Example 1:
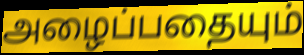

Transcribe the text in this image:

அழைப்பதையும்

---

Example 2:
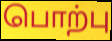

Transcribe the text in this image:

பொற்பு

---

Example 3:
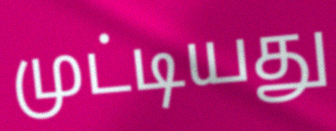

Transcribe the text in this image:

முட்டியது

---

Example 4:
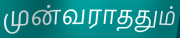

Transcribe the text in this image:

முன்வராததும்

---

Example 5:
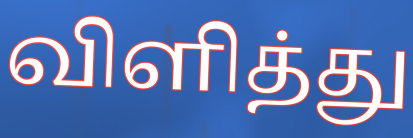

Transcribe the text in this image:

விளித்து